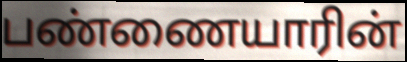
பண்ணையாரின்